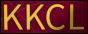
KKCL